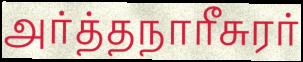
அர்த்தநாரீசுரர்